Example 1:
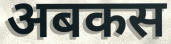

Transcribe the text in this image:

अबकस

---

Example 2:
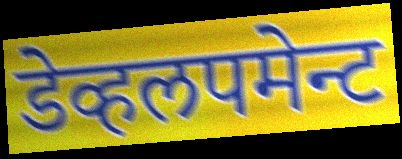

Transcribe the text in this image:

डेव्हलपमेन्ट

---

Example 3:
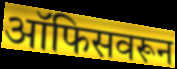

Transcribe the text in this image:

ऑफिसवरून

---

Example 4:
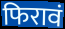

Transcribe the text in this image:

फिरावं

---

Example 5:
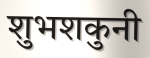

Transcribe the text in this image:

शुभशकुनी